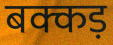
बक्कड़